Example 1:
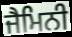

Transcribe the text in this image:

ਜੈਮਿਨੀ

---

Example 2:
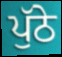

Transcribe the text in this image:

ਪੁੱਠੇ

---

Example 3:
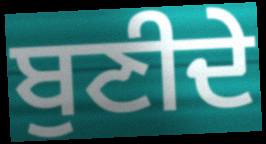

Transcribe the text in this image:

ਬੁਣੀਦੇ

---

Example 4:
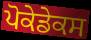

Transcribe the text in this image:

ਪੋਕੇਡੇਕਸ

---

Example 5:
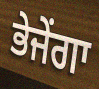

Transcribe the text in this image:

ਭੇਜੇਂਗਾ